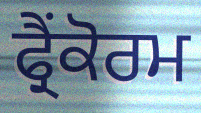
ਫ੍ਰੈਂਕੋਰਮ